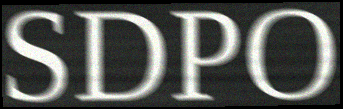
SDPO